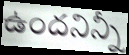
ఉందనిన్నీ